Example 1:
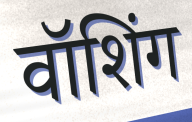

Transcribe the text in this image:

वॉशिंग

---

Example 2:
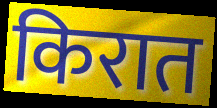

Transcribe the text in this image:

किरात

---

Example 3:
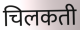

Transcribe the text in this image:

चिलकती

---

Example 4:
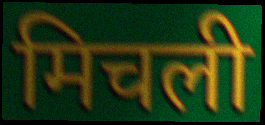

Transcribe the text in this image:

मिचली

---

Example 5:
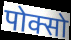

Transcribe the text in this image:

पोक्सो